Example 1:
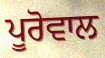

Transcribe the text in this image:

ਪੂਰੋਵਾਲ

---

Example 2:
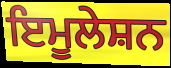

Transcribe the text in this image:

ਇਮੂਲੇਸ਼ਨ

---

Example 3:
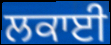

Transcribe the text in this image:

ਲਕਾਈ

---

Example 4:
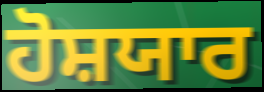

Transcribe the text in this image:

ਹੋਸ਼ਯਾਰ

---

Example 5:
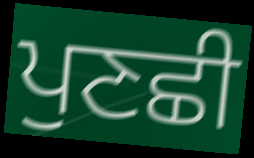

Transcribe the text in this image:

ਪੁਣਛੀ